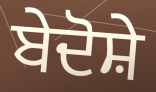
ਬੇਦੋਸ਼ੇ